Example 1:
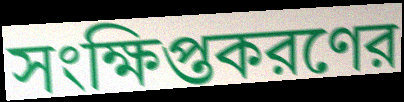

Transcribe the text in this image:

সংক্ষিপ্তকরণের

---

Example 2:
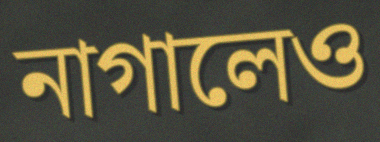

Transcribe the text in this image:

নাগালেও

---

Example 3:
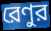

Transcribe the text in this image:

রেণুর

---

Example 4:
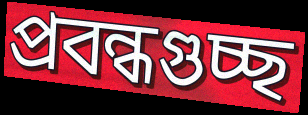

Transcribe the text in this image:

প্রবন্ধগুচ্ছ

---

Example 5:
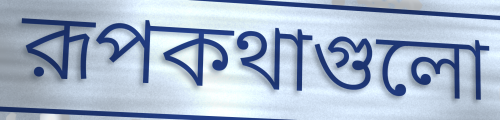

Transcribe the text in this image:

রূপকথাগুলো